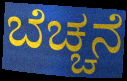
ಬೆಚ್ಚನೆ